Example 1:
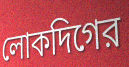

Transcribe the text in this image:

লোকদিগের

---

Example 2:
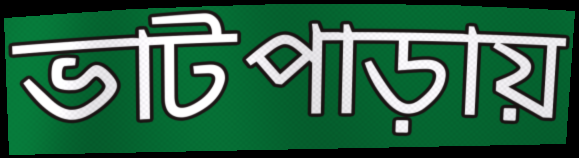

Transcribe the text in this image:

ভাটপাড়ায়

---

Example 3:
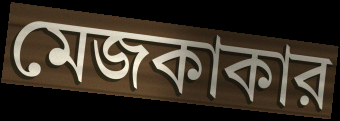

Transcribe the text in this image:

মেজকাকার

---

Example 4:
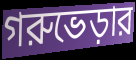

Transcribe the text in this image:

গরুভেড়ার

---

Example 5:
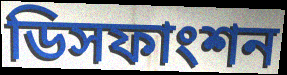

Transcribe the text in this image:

ডিসফাংশন